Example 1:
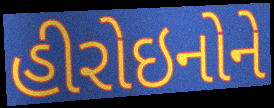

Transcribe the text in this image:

હીરોઇનોને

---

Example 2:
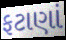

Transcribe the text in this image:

ફટાણાં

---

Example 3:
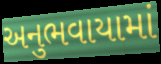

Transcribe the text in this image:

અનુભવાયામાં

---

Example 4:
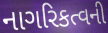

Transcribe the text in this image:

નાગરિકત્વની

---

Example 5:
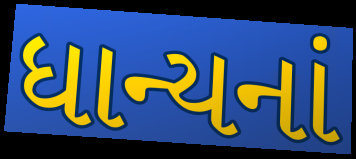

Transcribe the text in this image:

ધાન્યનાં